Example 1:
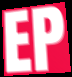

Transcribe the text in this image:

EP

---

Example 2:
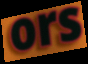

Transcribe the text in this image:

ors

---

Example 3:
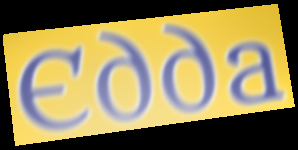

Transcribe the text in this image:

Edda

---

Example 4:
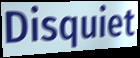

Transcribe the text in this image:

Disquiet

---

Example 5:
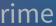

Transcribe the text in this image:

rime